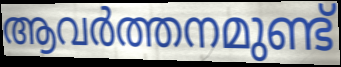
ആവർത്തനമുണ്ട്